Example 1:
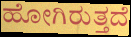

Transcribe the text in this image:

ಹೋಗಿರುತ್ತದೆ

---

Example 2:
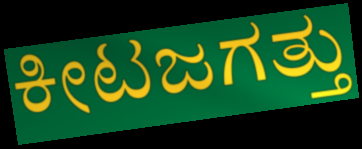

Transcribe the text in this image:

ಕೀಟಜಗತ್ತು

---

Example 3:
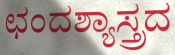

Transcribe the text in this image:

ಛಂದಶ್ಯಾಸ್ತ್ರದ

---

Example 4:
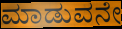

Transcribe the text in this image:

ಮಾಡುವನೇ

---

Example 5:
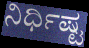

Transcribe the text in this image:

ನಿರ್ಧಿಷ್ಟ